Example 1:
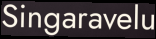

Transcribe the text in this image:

Singaravelu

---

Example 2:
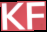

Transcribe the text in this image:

KF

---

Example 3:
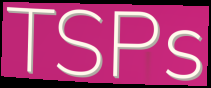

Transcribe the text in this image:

TSPs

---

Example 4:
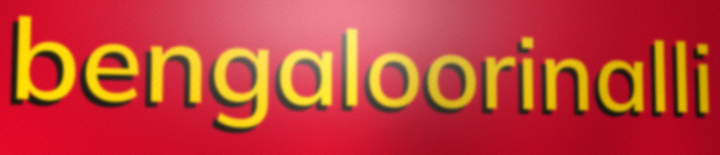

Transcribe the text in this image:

bengaloorinalli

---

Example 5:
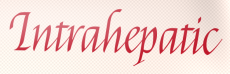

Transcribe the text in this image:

Intrahepatic